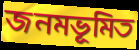
জনমভূমিত